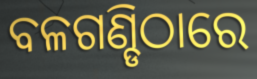
ବଳଗଣ୍ଡିଠାରେ